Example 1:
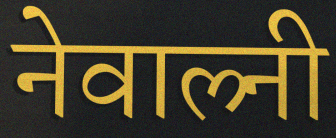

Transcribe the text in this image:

नेवाल्नी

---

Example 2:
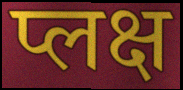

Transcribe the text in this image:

प्लक्ष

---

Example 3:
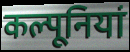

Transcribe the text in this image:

कल्पूनियां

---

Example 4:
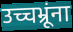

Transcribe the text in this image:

उच्चभ्रूंना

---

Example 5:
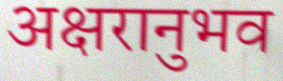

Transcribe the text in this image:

अक्षरानुभव